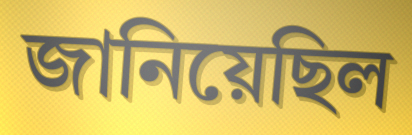
জানিয়েছিল